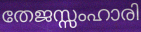
തേജസ്സംഹാരി